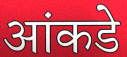
आंकडे